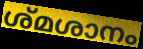
ശ്മശാനം